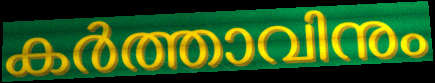
കർത്താവിനും